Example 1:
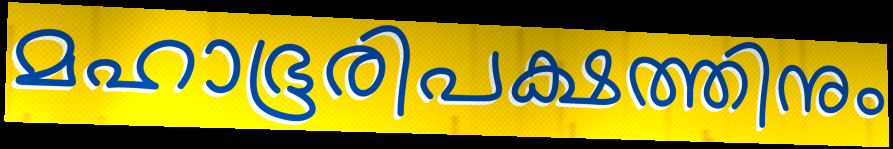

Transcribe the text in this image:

മഹാഭൂരിപക്ഷത്തിനും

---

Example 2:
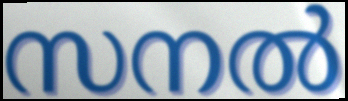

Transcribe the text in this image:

സനൽ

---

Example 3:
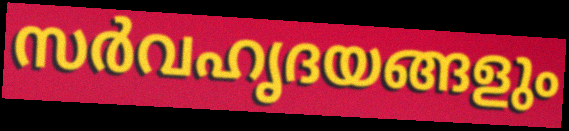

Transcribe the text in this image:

സർവഹൃദയങ്ങളും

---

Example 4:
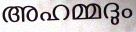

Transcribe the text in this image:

അഹമ്മദും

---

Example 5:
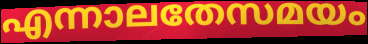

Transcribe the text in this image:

എന്നാലതേസമയം